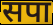
सपा